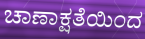
ಚಾಣಾಕ್ಷತೆಯಿಂದ